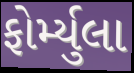
ફોર્મ્યુલા